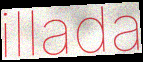
illada